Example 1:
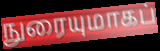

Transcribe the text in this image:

நுரையுமாகப்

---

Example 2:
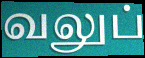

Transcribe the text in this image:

வலுப்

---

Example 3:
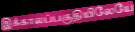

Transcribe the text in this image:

இக்காலப்பகுதியிலேயே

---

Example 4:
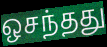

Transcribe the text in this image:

ஒசந்தது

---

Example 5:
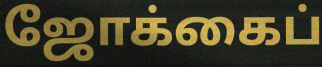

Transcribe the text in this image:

ஜோக்கைப்